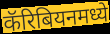
कॅरिबियनमध्ये